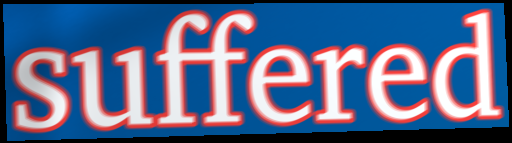
suffered